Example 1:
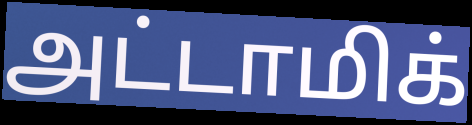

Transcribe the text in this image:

அட்டாமிக்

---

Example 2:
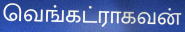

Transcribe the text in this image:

வெங்கட்ராகவன்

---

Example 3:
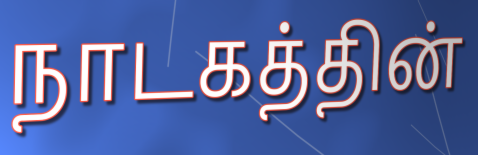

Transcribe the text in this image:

நாடகத்தின்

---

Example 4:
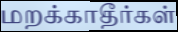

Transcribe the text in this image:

மறக்காதீர்கள்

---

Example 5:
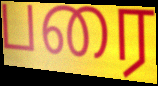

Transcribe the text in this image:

பரை